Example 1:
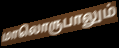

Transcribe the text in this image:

மாலொருபாலும்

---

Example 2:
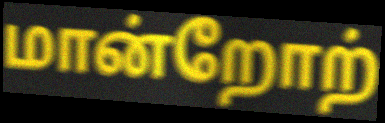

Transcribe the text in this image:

மான்றோற்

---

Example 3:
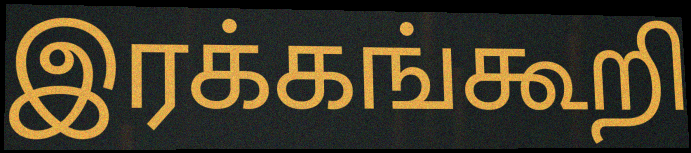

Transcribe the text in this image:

இரக்கங்கூறி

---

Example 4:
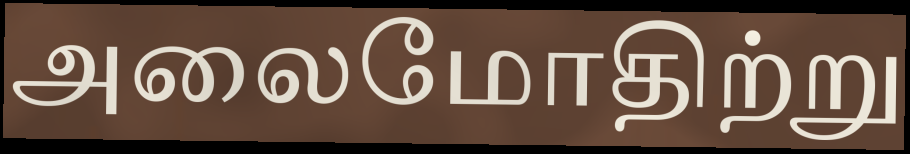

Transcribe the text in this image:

அலைமோதிற்று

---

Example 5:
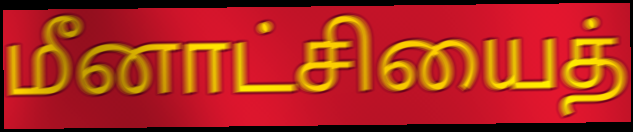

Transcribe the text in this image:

மீனாட்சியைத்